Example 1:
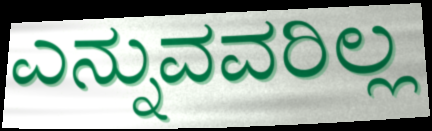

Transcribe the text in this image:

ಎನ್ನುವವರಿಲ್ಲ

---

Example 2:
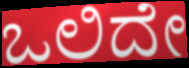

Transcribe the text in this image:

ಒಲಿದೇ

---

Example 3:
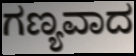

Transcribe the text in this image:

ಗಣ್ಯವಾದ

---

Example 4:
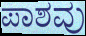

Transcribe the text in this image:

ಪಾಶವು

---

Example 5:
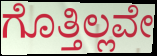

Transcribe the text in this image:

ಗೊತ್ತಿಲ್ಲವೇ